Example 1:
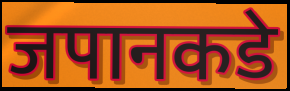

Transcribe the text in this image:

जपानकडे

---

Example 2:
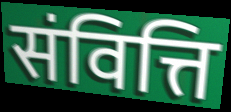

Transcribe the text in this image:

संवित्ति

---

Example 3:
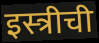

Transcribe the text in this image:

इस्त्रीची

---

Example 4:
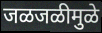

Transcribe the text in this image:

जळजळीमुळे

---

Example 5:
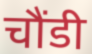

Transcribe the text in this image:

चौंडी